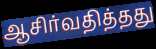
ஆசிர்வதித்தது